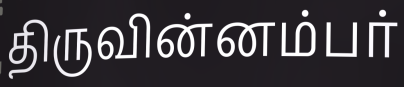
திருவின்னம்பர்